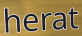
herat